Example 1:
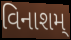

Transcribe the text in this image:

વિનાશમ્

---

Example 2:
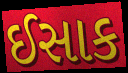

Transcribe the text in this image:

ઈસાક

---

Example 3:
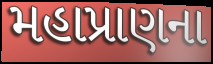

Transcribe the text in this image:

મહાપ્રાણના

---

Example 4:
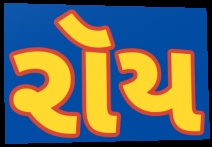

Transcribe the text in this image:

રૉય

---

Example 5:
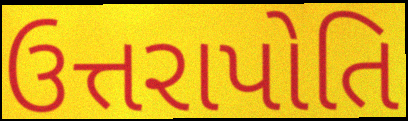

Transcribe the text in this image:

ઉત્તરાપોતિ